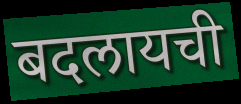
बदलायची